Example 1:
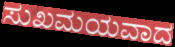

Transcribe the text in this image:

ಸುಖಮಯವಾದ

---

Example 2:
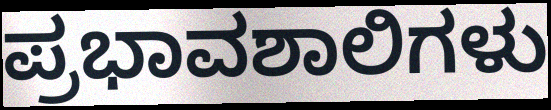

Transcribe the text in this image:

ಪ್ರಭಾವಶಾಲಿಗಳು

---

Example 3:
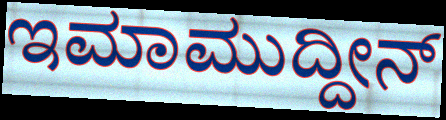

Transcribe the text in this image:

ಇಮಾಮುದ್ದೀನ್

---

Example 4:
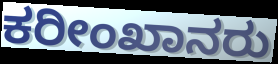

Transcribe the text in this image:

ಕರೀಂಖಾನರು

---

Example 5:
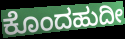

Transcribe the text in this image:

ಕೊಂದಹುದೀ